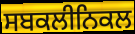
ਸਬਕਲੀਨਿਕਲ